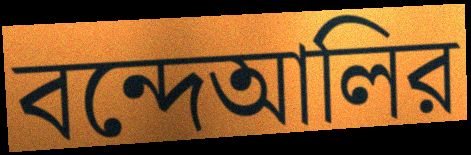
বন্দেআলির